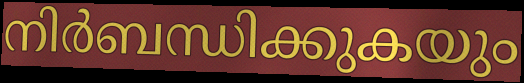
നിർബന്ധിക്കുകയും